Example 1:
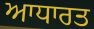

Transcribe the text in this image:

ਆਧਾਰਤ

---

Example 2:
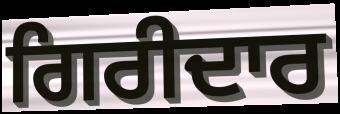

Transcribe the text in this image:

ਗਿਰੀਦਾਰ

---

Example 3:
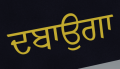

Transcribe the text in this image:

ਦਬਾਉਗਾ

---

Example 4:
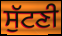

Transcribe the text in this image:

ਸੁੱਟਣੀ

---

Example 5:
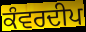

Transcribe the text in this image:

ਕੰਵਰਦੀਪ